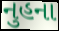
નુહના